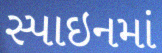
સ્પાઇનમાં